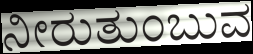
ನೀರುತುಂಬುವ